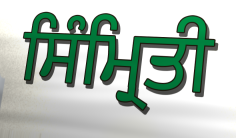
ਸਿੰਮ੍ਰਿਤੀ